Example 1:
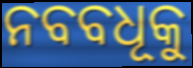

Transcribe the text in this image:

ନବବଧୂକୁ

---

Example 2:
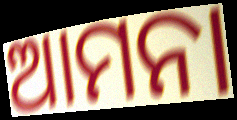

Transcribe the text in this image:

ଆମନା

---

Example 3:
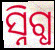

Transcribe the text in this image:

ସ୍ନିଗ୍ଧ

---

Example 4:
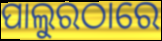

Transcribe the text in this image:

ପାଲୁରଠାରେ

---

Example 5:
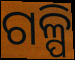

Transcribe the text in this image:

ଗଳ୍ପି